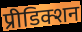
प्रीडिक्शन